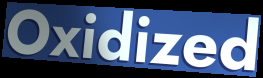
Oxidized